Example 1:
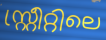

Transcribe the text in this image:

സ്റ്റ്രീറ്റിലെ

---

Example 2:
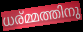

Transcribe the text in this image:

ധര്മ്മത്തിനു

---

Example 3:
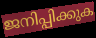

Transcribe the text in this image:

ജനിപ്പിക്കുക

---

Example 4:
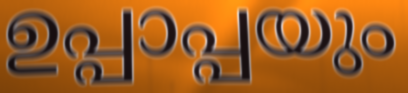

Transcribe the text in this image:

ഉപ്പാപ്പയും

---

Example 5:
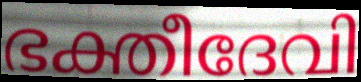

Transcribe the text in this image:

ഭക്തീദേവി